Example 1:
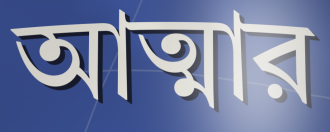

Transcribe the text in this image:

আত্মার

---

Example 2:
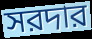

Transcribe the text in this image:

সরদার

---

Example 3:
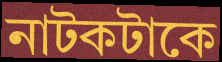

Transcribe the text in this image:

নাটকটাকে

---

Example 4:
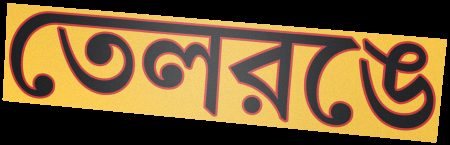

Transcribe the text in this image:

তেলরঙে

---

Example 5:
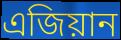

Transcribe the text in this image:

এজিয়ান